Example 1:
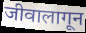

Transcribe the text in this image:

जीवालागून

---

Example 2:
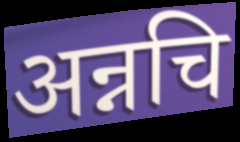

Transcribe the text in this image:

अन्नचि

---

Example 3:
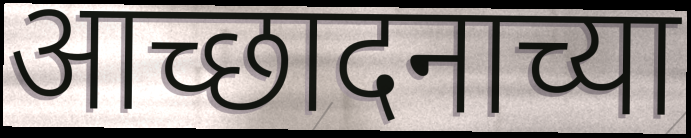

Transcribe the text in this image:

आच्छादनाच्या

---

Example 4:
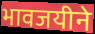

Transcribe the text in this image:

भावजयीने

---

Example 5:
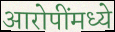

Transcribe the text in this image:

आरोपींमध्ये